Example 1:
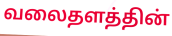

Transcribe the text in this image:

வலைதளத்தின்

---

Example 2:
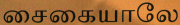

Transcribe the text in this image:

சைகையாலே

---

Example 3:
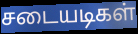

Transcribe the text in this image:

சடையடிகள்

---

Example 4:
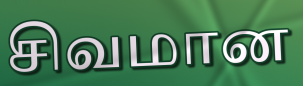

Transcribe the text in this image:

சிவமான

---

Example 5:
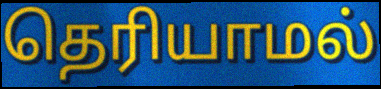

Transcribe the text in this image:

தெரியாமல்